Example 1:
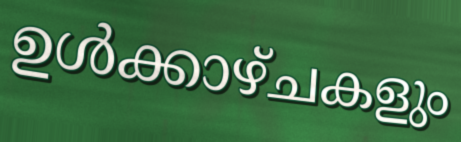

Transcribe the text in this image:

ഉൾക്കാഴ്ചകളും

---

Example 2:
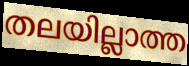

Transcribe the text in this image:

തലയില്ലാത്ത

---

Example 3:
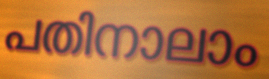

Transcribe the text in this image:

പതിനാലാം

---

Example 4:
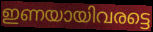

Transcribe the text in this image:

ഇണയായിവരട്ടെ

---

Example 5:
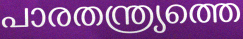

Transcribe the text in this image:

പാരതന്ത്ര്യത്തെ